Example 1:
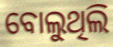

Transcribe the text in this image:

ବୋଲୁଥିଲି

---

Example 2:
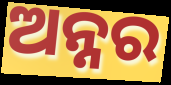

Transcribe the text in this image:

ଅନ୍ନର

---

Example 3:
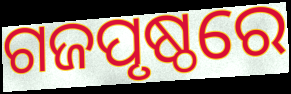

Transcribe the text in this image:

ଗଜପୃଷ୍ଠରେ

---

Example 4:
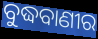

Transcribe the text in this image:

ବୁଦ୍ଧବାଣୀର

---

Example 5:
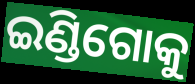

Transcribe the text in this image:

ଇଣ୍ଡିଗୋକୁ